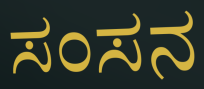
ಸಂಸನ